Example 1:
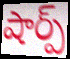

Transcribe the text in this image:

షార్ప్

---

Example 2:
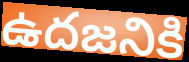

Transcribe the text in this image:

ఉదజనికి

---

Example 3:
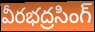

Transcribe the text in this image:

వీరభద్రసింగ్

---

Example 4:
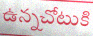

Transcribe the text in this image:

ఉన్నచోటుకి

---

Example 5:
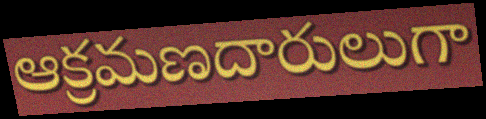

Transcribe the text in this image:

ఆక్రమణదారులుగా